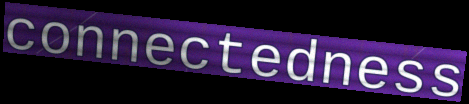
connectedness